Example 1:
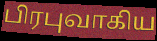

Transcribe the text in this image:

பிரபுவாகிய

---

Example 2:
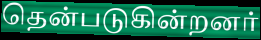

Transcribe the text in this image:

தென்படுகின்றனர்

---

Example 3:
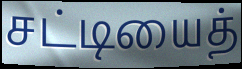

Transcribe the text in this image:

சட்டியைத்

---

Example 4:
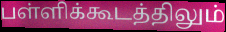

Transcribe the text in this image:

பள்ளிக்கூடத்திலும்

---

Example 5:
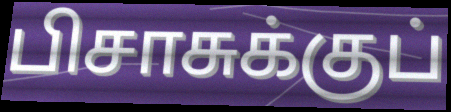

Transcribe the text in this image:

பிசாசுக்குப்